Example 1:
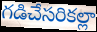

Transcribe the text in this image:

గడిచేసరికల్లా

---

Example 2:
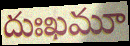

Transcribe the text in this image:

దుఃఖమూ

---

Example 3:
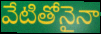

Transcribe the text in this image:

వేటితోనైనా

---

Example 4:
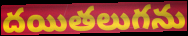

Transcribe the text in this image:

దయితలుగను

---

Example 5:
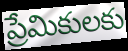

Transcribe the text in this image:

ప్రేమికులకు